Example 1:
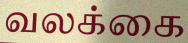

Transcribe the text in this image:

வலக்கை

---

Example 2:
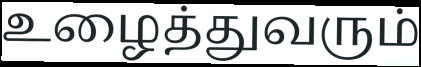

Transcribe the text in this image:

உழைத்துவரும்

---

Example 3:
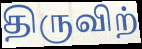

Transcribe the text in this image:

திருவிற்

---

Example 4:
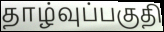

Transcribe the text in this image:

தாழ்வுப்பகுதி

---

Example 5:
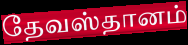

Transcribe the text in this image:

தேவஸ்தானம்